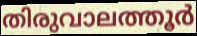
തിരുവാലത്തൂർ